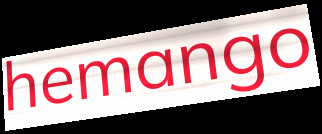
hemango